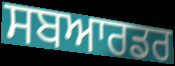
ਸਬਆਰਡਰ